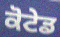
ਕੋਟੇਡ